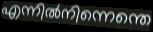
എന്നിൽനിന്നെന്തെ